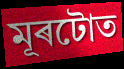
মূৰটোত